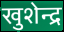
खुशेन्द्र